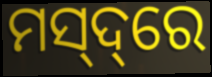
ମସ୍‌ଦ୍‌ରେ